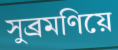
সুব্ৰমণিয়ে